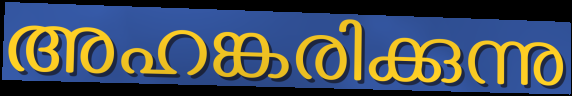
അഹങ്കരിക്കുന്നു